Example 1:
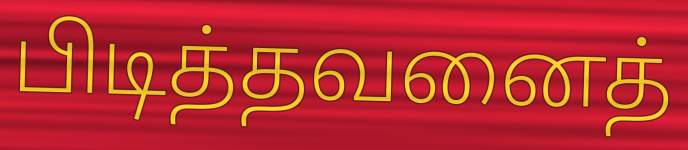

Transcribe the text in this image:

பிடித்தவனைத்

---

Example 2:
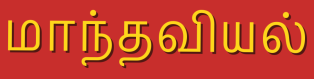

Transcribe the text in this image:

மாந்தவியல்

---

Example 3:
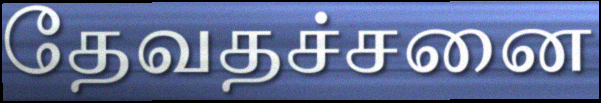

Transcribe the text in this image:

தேவதச்சனை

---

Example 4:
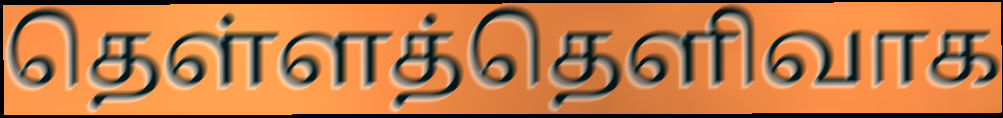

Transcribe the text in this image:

தெள்ளத்தெளிவாக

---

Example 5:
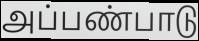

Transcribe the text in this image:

அப்பண்பாடு